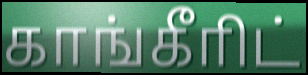
காங்கீரிட்